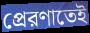
প্রেরণাতেই